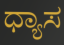
ಧ್ಯಾಸ